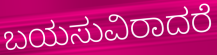
ಬಯಸುವಿರಾದರೆ